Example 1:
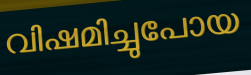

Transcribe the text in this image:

വിഷമിച്ചുപോയ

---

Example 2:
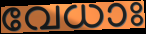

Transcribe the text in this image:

വേധാഃ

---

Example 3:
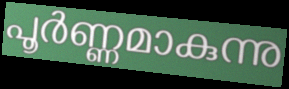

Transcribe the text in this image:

പൂർണ്ണമാകുന്നു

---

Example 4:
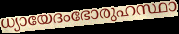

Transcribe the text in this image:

ധ്യായേദംഭോരുഹസ്ഥാ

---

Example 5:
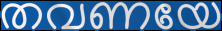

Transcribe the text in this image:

തവണയേ